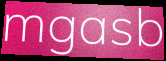
mgasb